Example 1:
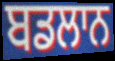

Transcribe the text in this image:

ਬਡਲਾਨ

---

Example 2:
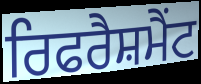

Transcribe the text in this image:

ਰਿਫਰੈਸ਼ਮੈਂਟ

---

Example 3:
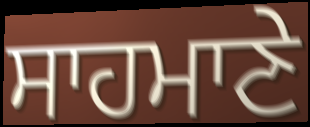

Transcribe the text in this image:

ਸਾਹਮਾਣੇ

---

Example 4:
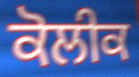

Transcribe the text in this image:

ਕੋਲੀਕ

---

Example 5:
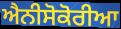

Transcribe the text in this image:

ਐਨੀਸੋਕੋਰੀਆ